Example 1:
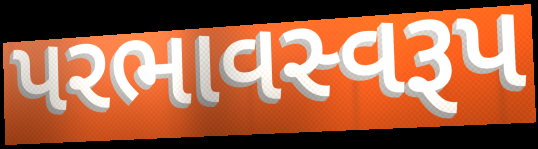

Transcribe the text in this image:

પરભાવસ્વરૂપ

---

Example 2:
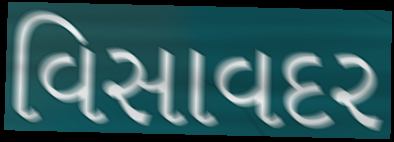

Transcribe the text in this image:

વિસાવદર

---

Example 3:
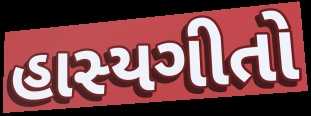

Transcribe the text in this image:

હાસ્યગીતો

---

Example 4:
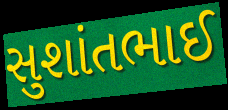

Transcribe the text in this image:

સુશાંતભાઈ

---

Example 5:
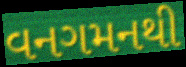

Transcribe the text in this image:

વનગમનથી